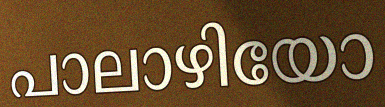
പാലാഴിയോ